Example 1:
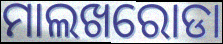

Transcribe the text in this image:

ମାଲଖରୋଡା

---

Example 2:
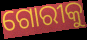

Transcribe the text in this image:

ଗୋରୀକୁ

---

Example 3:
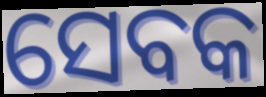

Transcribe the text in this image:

ସେବକ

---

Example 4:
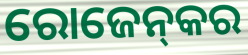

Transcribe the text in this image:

ରୋଜେନ୍‌କର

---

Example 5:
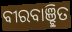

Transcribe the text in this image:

ବୀରବାଞ୍ଛିତ